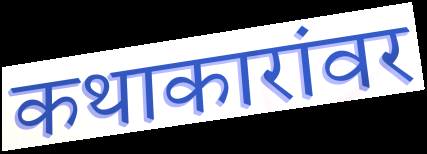
कथाकारांवर